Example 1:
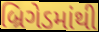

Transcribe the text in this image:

બ્રિગેડમાંથી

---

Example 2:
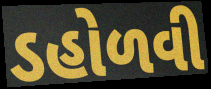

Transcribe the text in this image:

ડહોળવી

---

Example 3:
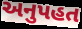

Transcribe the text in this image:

અનુપહત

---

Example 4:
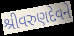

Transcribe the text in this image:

શ્રીવરુણદેવને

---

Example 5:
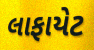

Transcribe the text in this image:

લાફાયેટ